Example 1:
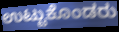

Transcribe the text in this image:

ಉಟ್ಟುಕೊಂಡರು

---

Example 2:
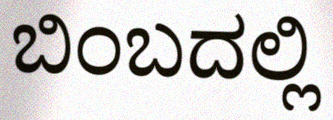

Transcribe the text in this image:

ಬಿಂಬದಲ್ಲಿ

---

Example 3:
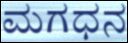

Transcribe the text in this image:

ಮಗಧನ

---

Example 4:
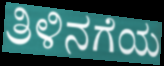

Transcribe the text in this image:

ತಿಳಿನಗೆಯ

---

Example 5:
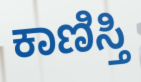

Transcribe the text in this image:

ಕಾಣಿಸ್ತಿ